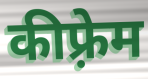
कीफ़्रेम